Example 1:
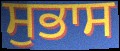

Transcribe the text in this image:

ਸੁਭਾਸ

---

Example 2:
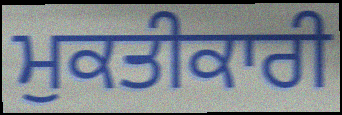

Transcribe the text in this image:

ਮੁਕਤੀਕਾਰੀ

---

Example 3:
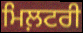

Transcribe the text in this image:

ਮਿਲ਼ਟਰੀ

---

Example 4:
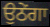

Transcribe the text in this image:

ਉਠੇਂਗਾ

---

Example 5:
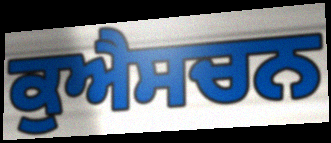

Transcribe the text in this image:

ਕੁਐਸਚਨ